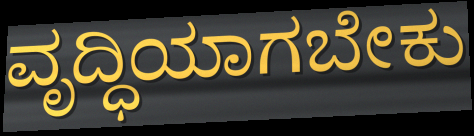
ವೃದ್ಧಿಯಾಗಬೇಕು